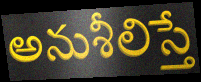
అనుశీలిస్తే